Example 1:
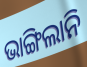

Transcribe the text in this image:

ଭାଙ୍ଗିଲାନି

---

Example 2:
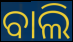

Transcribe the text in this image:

ବାଲି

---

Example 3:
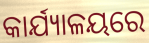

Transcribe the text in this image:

କାର୍ଯ୍ୟାଳୟରେ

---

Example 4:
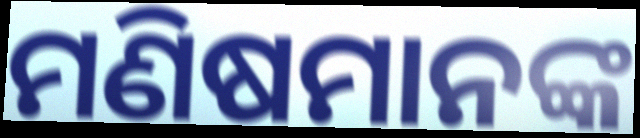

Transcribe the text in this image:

ମଣିଷମାନଙ୍କ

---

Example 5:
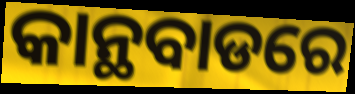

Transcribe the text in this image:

କାନ୍ଥବାଡରେ